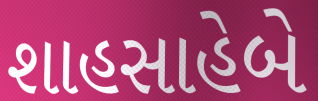
શાહસાહેબે